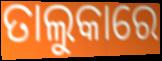
ତାଲୁକାରେ